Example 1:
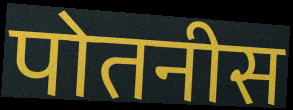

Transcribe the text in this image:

पोतनीस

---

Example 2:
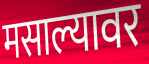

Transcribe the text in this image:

मसाल्यावर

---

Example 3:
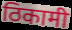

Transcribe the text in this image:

ठिकामी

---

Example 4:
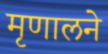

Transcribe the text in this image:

मृणालने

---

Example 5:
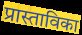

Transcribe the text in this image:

प्रास्ताविका